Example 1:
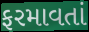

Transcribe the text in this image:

ફરમાવતાં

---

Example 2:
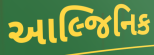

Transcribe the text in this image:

આલ્જિનિક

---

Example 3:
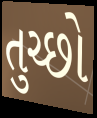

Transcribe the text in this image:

તુચ્છો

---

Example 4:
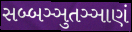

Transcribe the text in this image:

સબ્બઞ્ઞુતઞ્ઞાણં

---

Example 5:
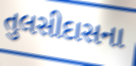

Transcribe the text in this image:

તુલસીદાસના